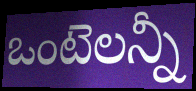
ఒంటెలన్నీ